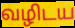
வழிடய